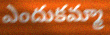
ఎందుకమ్మా